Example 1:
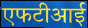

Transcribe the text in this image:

एफटीआई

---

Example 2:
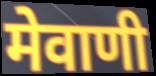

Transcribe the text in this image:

मेवाणी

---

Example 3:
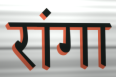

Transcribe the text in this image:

रांगा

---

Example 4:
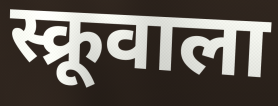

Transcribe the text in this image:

स्क्रूवाला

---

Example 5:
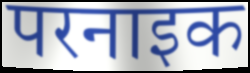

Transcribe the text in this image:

परनाइक